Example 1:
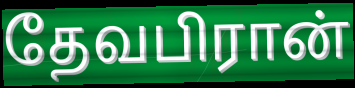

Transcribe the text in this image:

தேவபிரான்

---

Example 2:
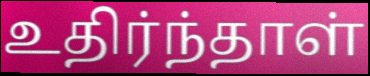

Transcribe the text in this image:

உதிர்ந்தாள்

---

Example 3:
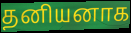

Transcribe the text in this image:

தனியனாக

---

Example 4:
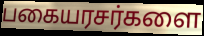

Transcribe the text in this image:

பகையரசர்களை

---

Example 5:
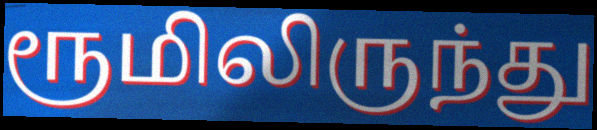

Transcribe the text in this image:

ரூமிலிருந்து